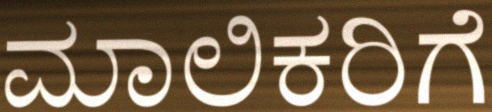
ಮಾಲಿಕರಿಗೆ